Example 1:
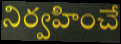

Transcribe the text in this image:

నిర్వహించే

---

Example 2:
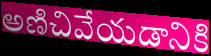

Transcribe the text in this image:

అణిచివేయడానికి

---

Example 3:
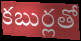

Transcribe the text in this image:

కబుర్లతో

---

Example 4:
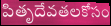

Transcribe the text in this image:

పితృదేవతలకోసం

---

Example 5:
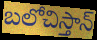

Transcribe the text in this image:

బలోచిస్తాన్